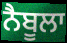
ਨੈਬੂਲਾ